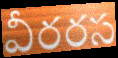
వీరరస